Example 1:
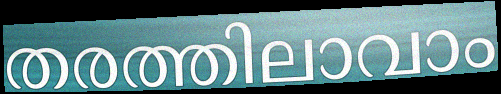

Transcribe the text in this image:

തരത്തിലാവാം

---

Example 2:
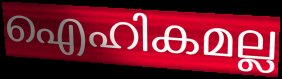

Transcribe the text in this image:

ഐഹികമല്ല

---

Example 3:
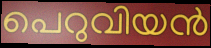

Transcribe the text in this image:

പെറുവിയൻ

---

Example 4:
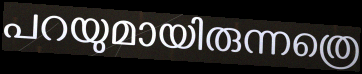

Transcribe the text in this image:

പറയുമായിരുന്നത്രെ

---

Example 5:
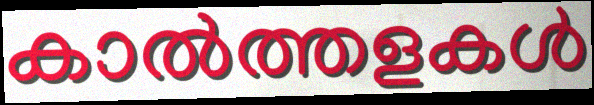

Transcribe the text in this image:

കാൽത്തളകൾ